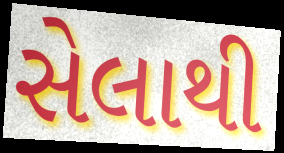
સેલાથી